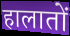
हालातों